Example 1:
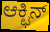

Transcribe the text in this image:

ಆಕ್ಟಿನ್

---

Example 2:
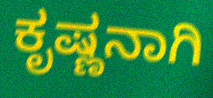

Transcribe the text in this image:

ಕೃಷ್ಣನಾಗಿ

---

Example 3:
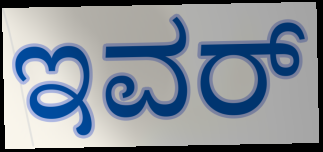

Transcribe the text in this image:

ಇವರ್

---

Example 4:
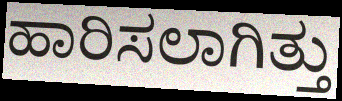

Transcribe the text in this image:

ಹಾರಿಸಲಾಗಿತ್ತು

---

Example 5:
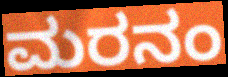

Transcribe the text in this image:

ಮರನಂ